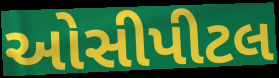
ઓસીપીટલ